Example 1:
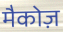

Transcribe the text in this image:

मैकोज़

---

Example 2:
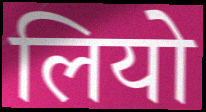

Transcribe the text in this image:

लियो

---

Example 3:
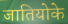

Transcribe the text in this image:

जातियोके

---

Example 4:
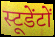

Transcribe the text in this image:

स्टूडेंटों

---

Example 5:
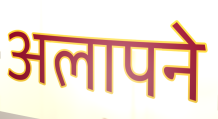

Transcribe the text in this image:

अलापने